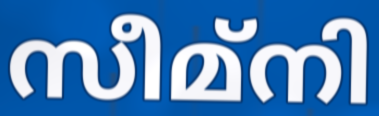
സീമ്നി